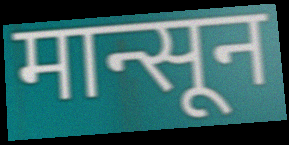
मान्सून